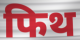
फिथ